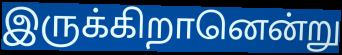
இருக்கிறானென்று